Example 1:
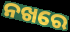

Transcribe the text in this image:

ନଖରେ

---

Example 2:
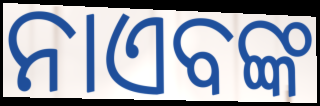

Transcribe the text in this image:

ନାଏବଙ୍କ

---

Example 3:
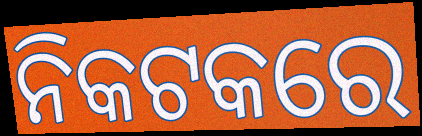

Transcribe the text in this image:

ନିକଟକରେ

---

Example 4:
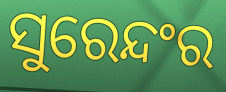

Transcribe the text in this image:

ସୁରେନ୍ଦଂର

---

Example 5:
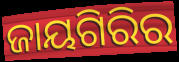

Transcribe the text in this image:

ଜାୟଗିରିର